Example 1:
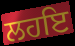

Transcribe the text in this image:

ਲਹਇ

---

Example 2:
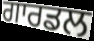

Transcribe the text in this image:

ਗਾਰਡਲ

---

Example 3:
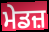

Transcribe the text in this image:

ਮੇਡਜ਼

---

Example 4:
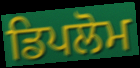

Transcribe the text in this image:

ਡਿਪਲੋਮ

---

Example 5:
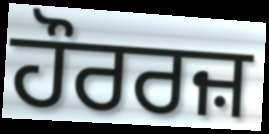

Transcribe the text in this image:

ਹੌਰਰਜ਼